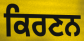
ਕਿਰਣਨ